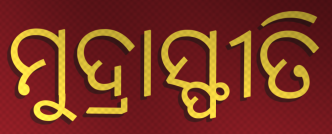
ମୁଦ୍ରାସ୍ଫୀତି